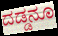
ದಡ್ಡನೂ